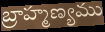
బ్రాహ్మణ్యము